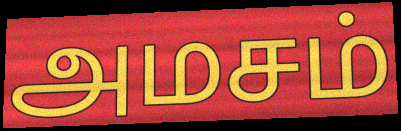
அமசம்